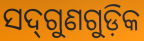
ସଦ୍‌ଗୁଣଗୁଡ଼ିକ